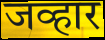
जव्हार